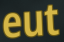
eut